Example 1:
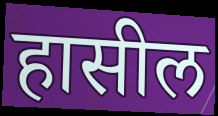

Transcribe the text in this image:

हासील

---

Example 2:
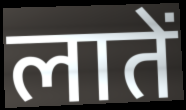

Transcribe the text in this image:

लातें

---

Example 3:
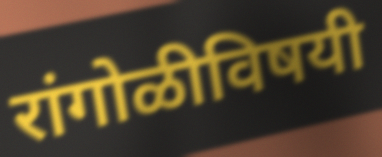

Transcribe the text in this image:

रांगोळीविषयी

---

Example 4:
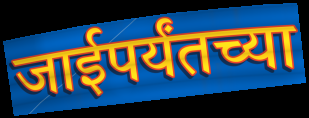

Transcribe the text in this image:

जाईपर्यंतच्या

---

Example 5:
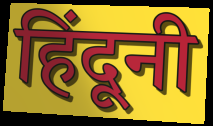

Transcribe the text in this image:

हिंदूनी